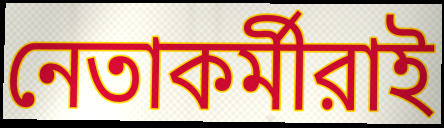
নেতাকর্মীরাই